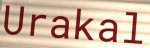
Urakal